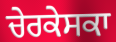
ਚੇਰਕੇਸਕਾ